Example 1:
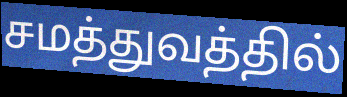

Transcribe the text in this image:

சமத்துவத்தில்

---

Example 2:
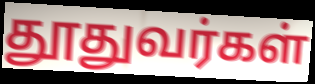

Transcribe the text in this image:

தூதுவர்கள்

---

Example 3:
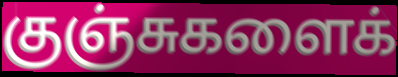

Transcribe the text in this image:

குஞ்சுகளைக்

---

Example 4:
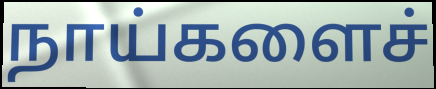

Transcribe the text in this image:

நாய்களைச்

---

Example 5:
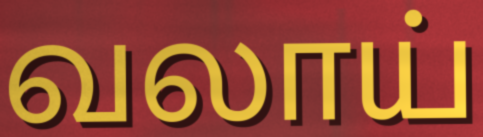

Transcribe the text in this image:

வலாய்